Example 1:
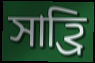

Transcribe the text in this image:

সাহ্রি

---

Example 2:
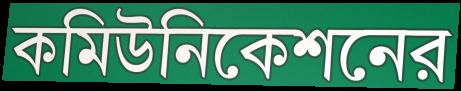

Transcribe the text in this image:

কমিউনিকেশনের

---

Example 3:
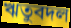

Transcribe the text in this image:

ঋতুবদল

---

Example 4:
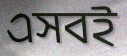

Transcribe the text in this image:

এসবই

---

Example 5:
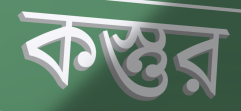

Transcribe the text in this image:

কস্তুর